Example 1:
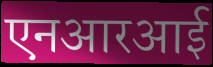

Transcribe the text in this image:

एनआरआई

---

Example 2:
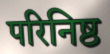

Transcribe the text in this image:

परिनिष्ठ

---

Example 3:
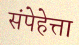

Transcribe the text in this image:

संपेहेत्ता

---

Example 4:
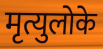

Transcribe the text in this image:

मृत्युलोके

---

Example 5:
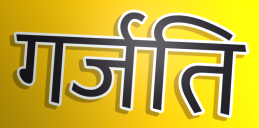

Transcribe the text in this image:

गर्जति